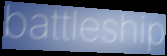
battleship